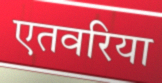
एतवरिया